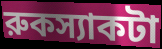
রুকস্যাকটা